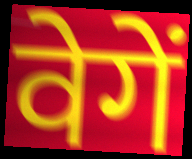
वेगें